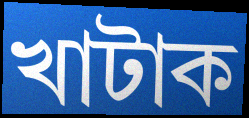
খাটাক